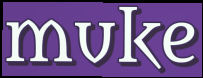
muke